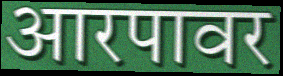
आरपावर